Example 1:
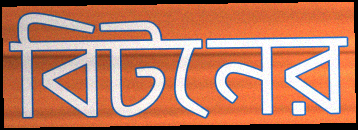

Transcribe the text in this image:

বিটনের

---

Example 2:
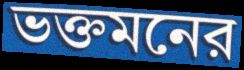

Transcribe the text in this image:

ভক্তমনের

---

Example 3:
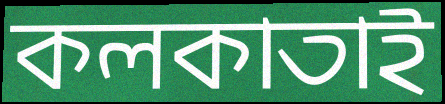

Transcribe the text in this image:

কলকাতাই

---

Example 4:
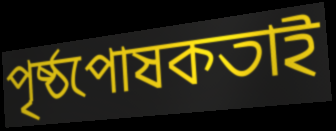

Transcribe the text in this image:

পৃষ্ঠপোষকতাই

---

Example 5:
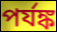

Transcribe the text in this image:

পর্যঙ্ক